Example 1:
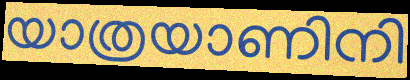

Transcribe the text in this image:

യാത്രയാണിനി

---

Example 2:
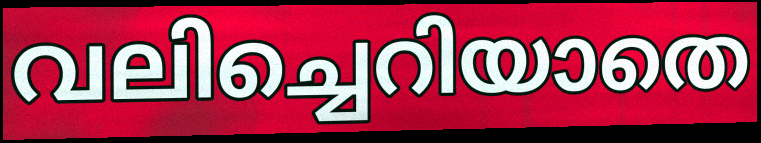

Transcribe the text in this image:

വലിച്ചെറിയാതെ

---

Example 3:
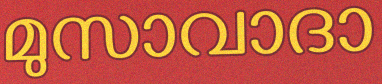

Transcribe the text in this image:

മുസാവാദാ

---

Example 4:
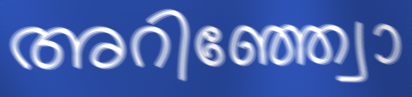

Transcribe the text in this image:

അറിഞ്ഞ്വോ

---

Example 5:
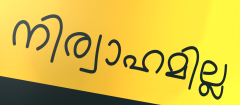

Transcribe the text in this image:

നിര്വാഹമില്ല